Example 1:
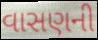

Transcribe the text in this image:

વાસણની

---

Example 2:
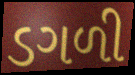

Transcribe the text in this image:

ડગળી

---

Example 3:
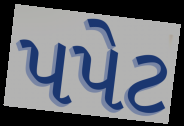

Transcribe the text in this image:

પપેટ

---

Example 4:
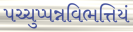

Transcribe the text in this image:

પચ્ચુપ્પન્નવિભત્તિયં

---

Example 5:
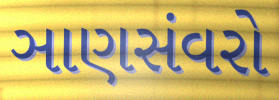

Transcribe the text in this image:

ઞાણસંવરો